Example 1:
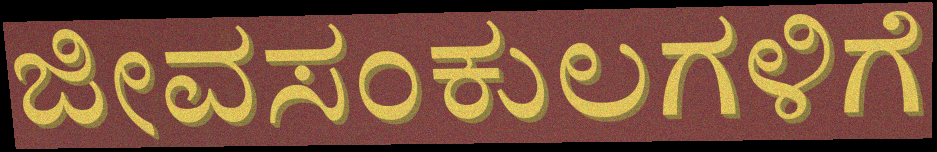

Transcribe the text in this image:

ಜೀವಸಂಕುಲಗಳಿಗೆ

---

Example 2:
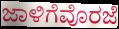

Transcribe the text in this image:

ಜಾಳಿಗೆವೊರಜೆ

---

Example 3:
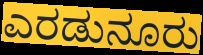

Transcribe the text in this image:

ಎರಡುನೂರು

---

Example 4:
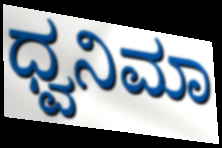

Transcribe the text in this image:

ಧ್ವನಿಮಾ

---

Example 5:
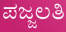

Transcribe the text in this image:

ಪಜ್ಜಲತಿ